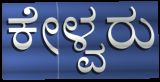
ಕೇಳ್ವರು